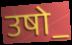
उषो॒